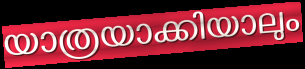
യാത്രയാക്കിയാലും